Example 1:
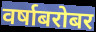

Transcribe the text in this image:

वर्षाबरोबर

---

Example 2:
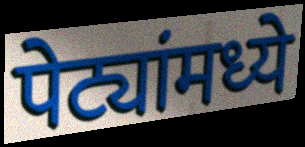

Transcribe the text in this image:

पेट्यांमध्ये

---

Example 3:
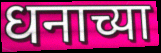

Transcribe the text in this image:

धनाच्या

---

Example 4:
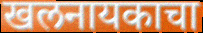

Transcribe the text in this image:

खलनायकाचा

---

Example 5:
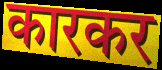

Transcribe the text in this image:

कारकर